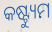
କଷ୍ଟ୍ୟୁମ